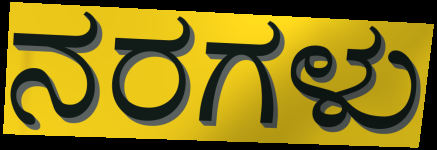
ನರಗಳು